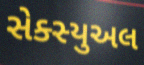
સેક્સ્યુઅલ